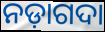
ନଡ଼ାଗଦା